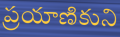
ప్రయాణికుని